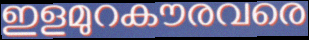
ഇളമുറകൗരവരെ